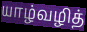
யாழ்வழித்